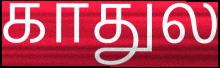
காதுல